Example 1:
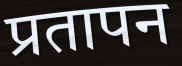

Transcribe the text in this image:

प्रतापन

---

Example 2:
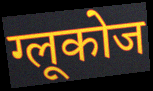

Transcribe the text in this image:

ग्लूकोज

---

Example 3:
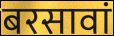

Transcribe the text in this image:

बरसावां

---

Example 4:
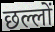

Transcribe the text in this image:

छल्लों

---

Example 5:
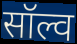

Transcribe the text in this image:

सॉल्व